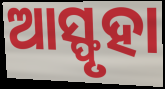
ଆସ୍ଫୃହା